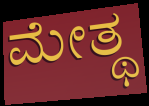
ಮೇತ್ಥ